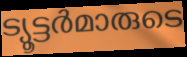
ട്യൂട്ടർമാരുടെ